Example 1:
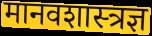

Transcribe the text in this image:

मानवशास्त्रज्ञ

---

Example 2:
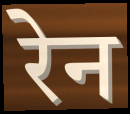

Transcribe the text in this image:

रेन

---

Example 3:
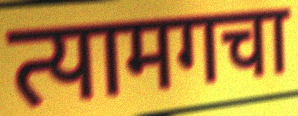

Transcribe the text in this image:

त्यामगचा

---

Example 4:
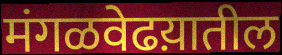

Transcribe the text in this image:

मंगळवेढय़ातील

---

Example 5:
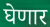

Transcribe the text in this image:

घेणार